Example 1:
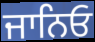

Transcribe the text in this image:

ਜਾਨਿਓ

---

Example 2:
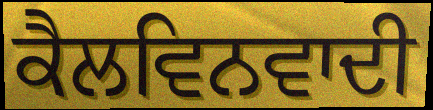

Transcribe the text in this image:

ਕੈਲਵਿਨਵਾਦੀ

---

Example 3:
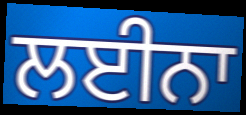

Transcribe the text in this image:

ਲਈਨਾ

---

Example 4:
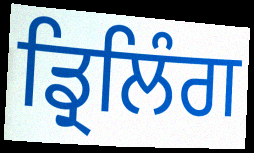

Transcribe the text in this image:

ਡ੍ਰਿਲਿੰਗ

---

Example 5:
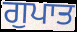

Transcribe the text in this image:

ਗੁਪਾਤ